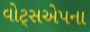
વોટ્સએપના